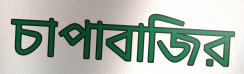
চাপাবাজির